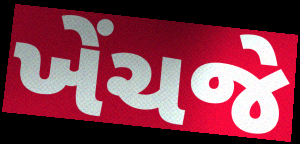
ખેંચજે